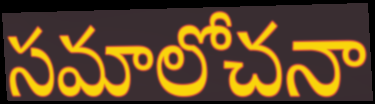
సమాలోచనా